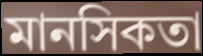
মানসিকতা